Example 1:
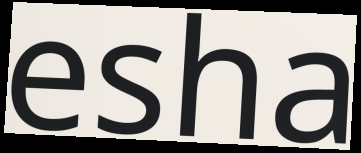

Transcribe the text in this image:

esha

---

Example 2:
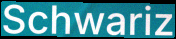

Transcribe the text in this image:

Schwariz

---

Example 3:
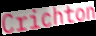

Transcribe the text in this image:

Crichton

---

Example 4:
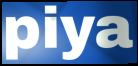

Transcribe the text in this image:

piya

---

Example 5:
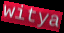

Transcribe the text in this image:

witya